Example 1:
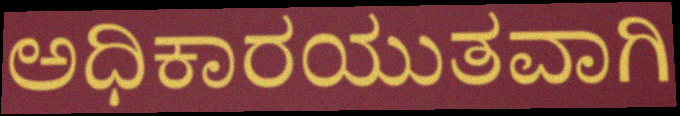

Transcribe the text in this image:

ಅಧಿಕಾರಯುತವಾಗಿ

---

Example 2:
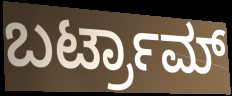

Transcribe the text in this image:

ಬರ್ಟ್ರಾಮ್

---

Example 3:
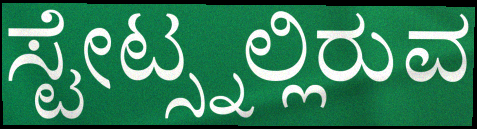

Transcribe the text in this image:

ಸ್ಟೇಟ್ಸ್ನಲ್ಲಿರುವ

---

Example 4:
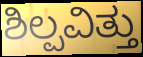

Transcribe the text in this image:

ಶಿಲ್ಪವಿತ್ತು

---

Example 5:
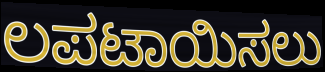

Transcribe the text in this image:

ಲಪಟಾಯಿಸಲು